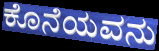
ಕೊನೆಯವನು